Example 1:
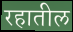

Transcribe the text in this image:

रहातील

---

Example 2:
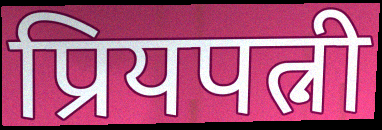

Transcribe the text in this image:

प्रियपत्नी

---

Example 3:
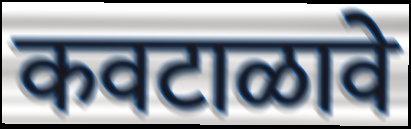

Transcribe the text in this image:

कवटाळावे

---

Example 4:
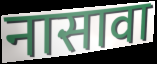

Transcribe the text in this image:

नासावा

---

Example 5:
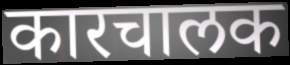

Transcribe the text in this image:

कारचालक